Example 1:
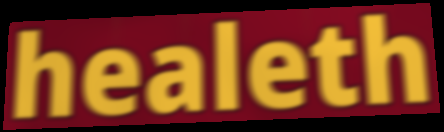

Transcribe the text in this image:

healeth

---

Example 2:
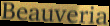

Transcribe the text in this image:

Beauveria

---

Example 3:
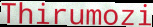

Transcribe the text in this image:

Thirumozi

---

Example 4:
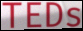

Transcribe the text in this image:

TEDs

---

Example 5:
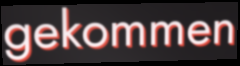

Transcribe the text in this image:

gekommen